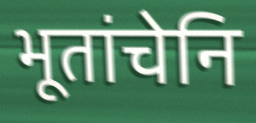
भूतांचेनि